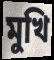
মুখি